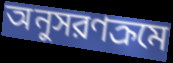
অনুসরণক্রমে